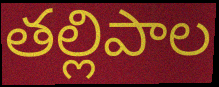
తల్లిపాల